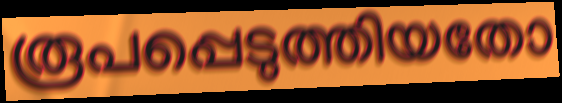
രൂപപ്പെടുത്തിയതോ